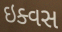
ઇક્વસ